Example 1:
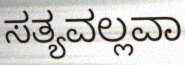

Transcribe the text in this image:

ಸತ್ಯವಲ್ಲವಾ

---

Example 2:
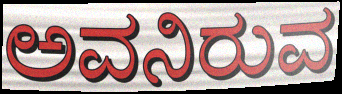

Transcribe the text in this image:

ಅವನಿರುವ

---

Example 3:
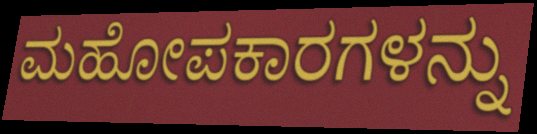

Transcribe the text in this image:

ಮಹೋಪಕಾರಗಳನ್ನು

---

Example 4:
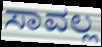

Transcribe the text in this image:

ಸಾವಲ್ಲ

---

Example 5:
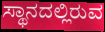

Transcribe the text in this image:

ಸ್ಥಾನದಲ್ಲಿರುವ